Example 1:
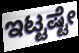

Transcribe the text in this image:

ಇಟ್ಟಷ್ಟೇ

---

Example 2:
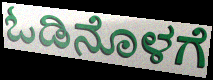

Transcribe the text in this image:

ಓಡಿನೊಳಗೆ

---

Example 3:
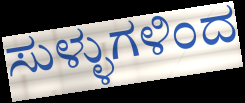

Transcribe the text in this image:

ಸುಳ್ಳುಗಳಿಂದ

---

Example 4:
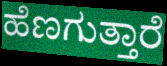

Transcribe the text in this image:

ಹೆಣಗುತ್ತಾರೆ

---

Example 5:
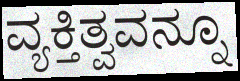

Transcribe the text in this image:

ವ್ಯಕ್ತಿತ್ವವನ್ನೂ